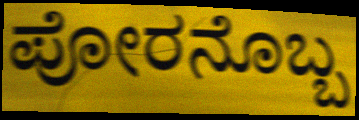
ಪೋರನೊಬ್ಬ